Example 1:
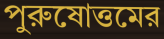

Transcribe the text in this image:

পুরুষোত্তমের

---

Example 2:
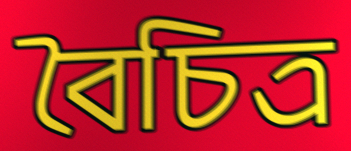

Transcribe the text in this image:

বৈচিত্র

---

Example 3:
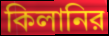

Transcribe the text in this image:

কিলানির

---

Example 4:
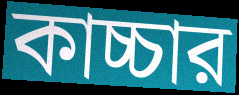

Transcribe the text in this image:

কাচ্চার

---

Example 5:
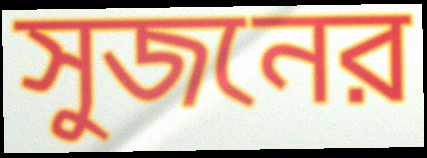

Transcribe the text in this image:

সুজনের